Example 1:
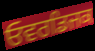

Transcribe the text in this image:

ਓਵਰਡਿਜਕ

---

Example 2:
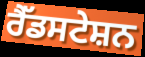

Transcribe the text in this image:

ਰੈੱਡਸਟੇਸ਼ਨ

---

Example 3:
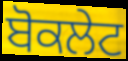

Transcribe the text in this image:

ਬੋਕਲੇਟ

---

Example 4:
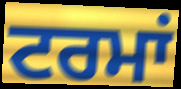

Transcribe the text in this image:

ਟਰਮਾਂ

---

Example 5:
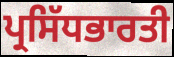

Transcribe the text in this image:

ਪ੍ਰਸਿੱਧਭਾਰਤੀ